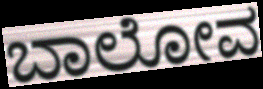
ಬಾಲೋವ